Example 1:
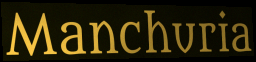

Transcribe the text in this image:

Manchuria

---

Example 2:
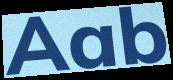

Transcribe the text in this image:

Aab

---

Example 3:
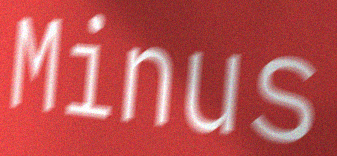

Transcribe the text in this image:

Minus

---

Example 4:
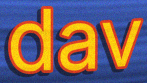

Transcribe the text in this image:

dav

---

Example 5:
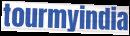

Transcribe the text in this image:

tourmyindia